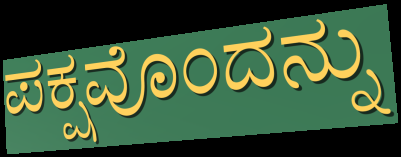
ಪಕ್ಷವೊಂದನ್ನು